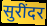
सुरींदर